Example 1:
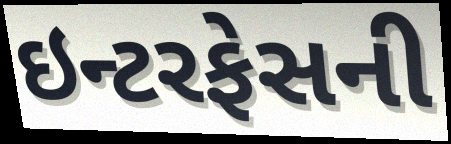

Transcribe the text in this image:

ઇન્ટરફેસની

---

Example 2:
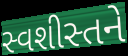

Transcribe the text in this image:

સ્વશીસ્તને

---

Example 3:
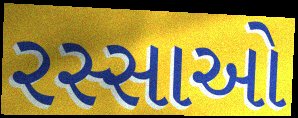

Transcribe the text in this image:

રસ્સાઓ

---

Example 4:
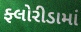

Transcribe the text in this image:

ફ્લોરીડામાં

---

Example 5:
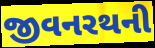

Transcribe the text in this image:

જીવનરથની